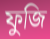
ফুজি